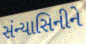
સંન્યાસિનીને